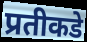
प्रतीकडे